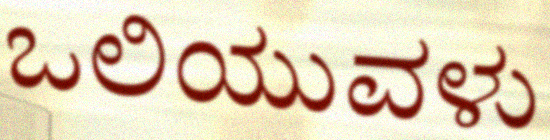
ಒಲಿಯುವಳು